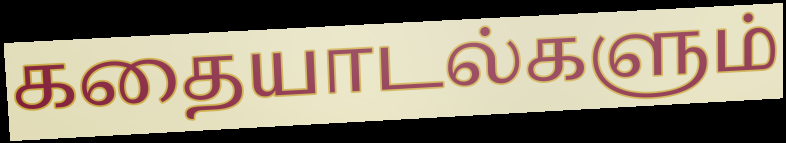
கதையாடல்களும்